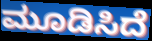
ಮೂಡಿಸಿದೆ